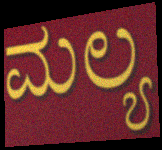
ಮಲ್ಯ